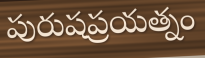
పురుషప్రయత్నం